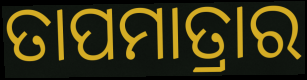
ତାପମାତ୍ରାର